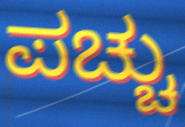
ಪಚ್ಚು